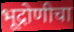
भूद्रोणीचा